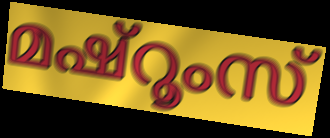
മഷ്റൂംസ്